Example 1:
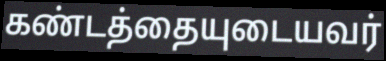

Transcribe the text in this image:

கண்டத்தையுடையவர்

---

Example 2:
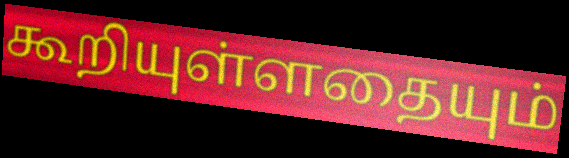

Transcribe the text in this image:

கூறியுள்ளதையும்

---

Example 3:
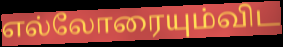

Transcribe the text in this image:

எல்லோரையும்விட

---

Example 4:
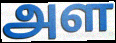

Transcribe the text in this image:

அள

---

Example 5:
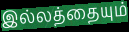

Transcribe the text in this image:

இல்லத்தையும்